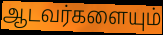
ஆடவர்களையும்